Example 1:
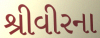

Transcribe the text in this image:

શ્રીવીરના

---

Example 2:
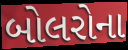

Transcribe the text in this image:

બોલરોના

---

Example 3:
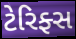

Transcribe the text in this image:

ટેરિફ્સ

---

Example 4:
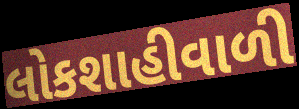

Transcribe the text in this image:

લોકશાહીવાળી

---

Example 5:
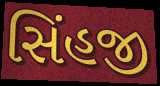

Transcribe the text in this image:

સિંહજી